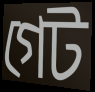
গেট